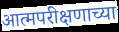
आत्मपरीक्षणाच्या